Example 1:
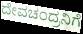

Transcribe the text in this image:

ದೇವಚಂದ್ರನಿಗೆ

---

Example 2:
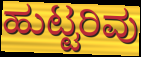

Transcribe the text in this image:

ಹುಟ್ಟರಿವು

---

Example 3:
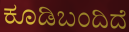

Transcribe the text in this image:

ಕೂಡಿಬಂದಿದೆ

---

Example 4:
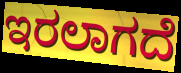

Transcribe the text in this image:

ಇರಲಾಗದೆ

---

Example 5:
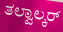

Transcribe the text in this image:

ತಲ್ವಾಲ್ಕರ್